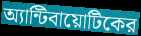
অ্যান্টিবায়োটিকের